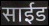
साईड